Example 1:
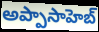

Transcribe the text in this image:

అప్పాసాహెబ్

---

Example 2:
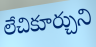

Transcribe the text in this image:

లేచికూర్చుని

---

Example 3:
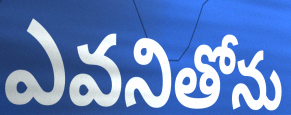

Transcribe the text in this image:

ఎవనితోను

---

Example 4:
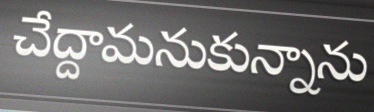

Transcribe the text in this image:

చేద్దామనుకున్నాను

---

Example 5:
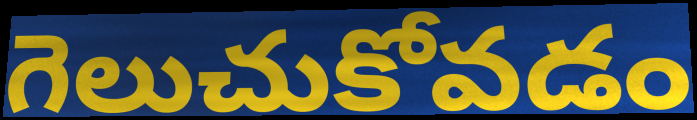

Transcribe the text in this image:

గెలుచుకోవడం